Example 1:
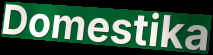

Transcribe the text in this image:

Domestika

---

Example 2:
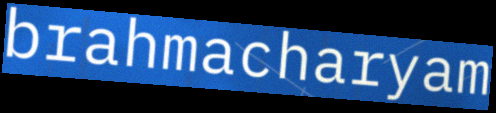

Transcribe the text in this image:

brahmacharyam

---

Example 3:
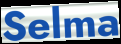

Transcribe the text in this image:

Selma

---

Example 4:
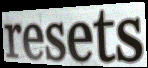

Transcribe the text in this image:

resets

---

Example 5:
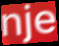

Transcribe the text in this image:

nje